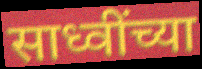
साध्वींच्या